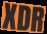
XDR